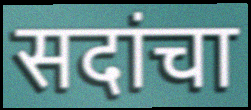
सदांचा